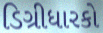
ડિગ્રીધારકો